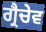
ਗ੍ਰੈਚੇਵ